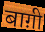
बाग़ी